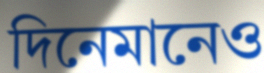
দিনেমানেও